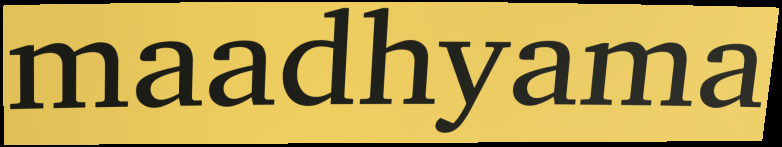
maadhyama